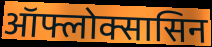
ऑफ्लोक्सासिन